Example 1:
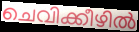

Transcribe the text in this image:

ചെവിക്കീഴിൽ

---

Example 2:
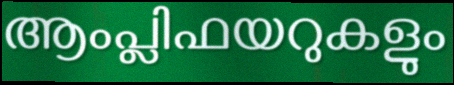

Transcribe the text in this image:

ആംപ്ലിഫയറുകളും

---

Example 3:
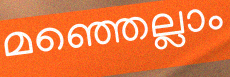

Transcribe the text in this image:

മഞ്ഞെല്ലാം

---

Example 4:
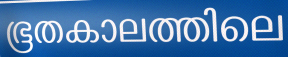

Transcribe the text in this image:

ഭൂതകാലത്തിലെ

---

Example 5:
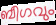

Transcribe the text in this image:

ബീഗവും